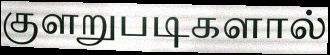
குளறுபடிகளால்